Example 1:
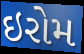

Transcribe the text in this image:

ઇરોમ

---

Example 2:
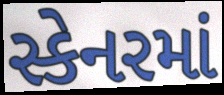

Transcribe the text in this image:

સ્કેનરમાં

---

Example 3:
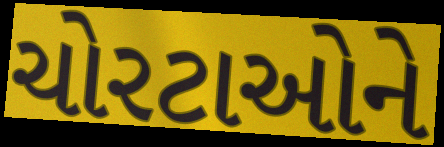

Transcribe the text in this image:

ચોરટાઓને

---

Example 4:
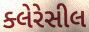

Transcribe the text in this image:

ક્લેરેસીલ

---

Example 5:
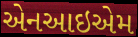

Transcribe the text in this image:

એનઆઇએમ